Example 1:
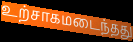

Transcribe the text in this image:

உற்சாகமடைந்தது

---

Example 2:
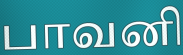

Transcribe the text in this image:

பாவனி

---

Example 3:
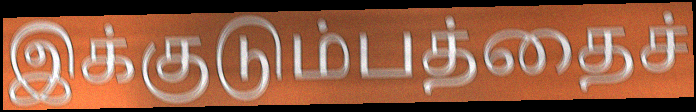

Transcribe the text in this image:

இக்குடும்பத்தைச்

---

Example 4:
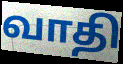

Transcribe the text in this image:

வாதி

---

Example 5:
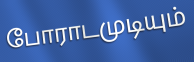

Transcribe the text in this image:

போராடமுடியும்